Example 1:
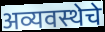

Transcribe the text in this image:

अव्यवस्थेचे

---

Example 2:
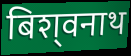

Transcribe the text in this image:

बिश्वनाथ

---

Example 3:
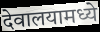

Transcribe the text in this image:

देवालयामध्ये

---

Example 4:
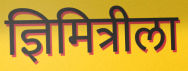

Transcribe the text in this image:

ज्ञिमित्रीला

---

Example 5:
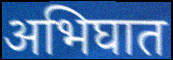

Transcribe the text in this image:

अभिघात